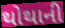
થોથાની